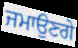
ਜਮਾਉਣਗੇ